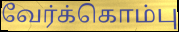
வேர்க்கொம்பு